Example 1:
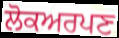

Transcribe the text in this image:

ਲੋਕਅਰਪਣ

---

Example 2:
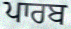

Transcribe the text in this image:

ਪਾਰਬ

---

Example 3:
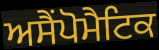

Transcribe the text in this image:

ਅਸੈਂਪੋਮੈਟਿਕ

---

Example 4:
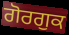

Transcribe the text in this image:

ਗੋਰਗੁਕ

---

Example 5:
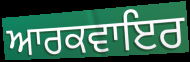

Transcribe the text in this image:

ਆਰਕਵਾਇਰ